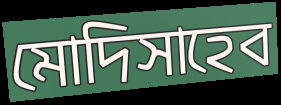
মোদিসাহেব